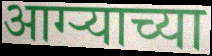
आग्ऱ्याच्या